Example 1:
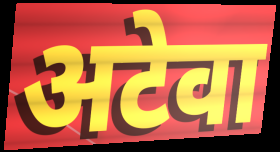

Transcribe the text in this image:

अटेवा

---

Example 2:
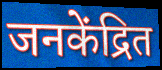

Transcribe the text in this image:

जनकेंद्रित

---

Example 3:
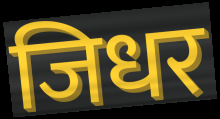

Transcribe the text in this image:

जिधर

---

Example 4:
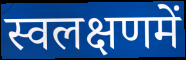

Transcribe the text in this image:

स्वलक्षणमें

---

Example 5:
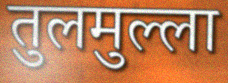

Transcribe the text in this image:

तुलमुल्ला